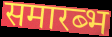
समारब्भ